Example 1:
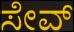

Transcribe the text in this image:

ಸೇವ್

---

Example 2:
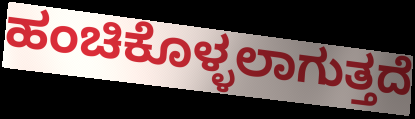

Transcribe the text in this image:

ಹಂಚಿಕೊಳ್ಳಲಾಗುತ್ತದೆ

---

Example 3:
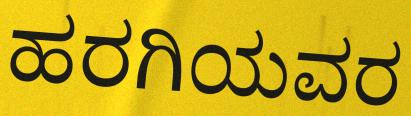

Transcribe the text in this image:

ಹರಗಿಯವರ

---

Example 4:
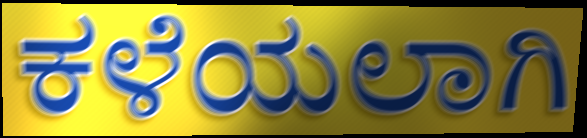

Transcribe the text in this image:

ಕಳೆಯಲಾಗಿ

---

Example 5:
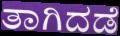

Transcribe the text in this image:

ತಾಗಿದಡೆ